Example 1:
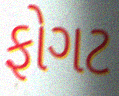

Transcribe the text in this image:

ફોગટ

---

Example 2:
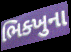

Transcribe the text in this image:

ભિક્ખુના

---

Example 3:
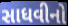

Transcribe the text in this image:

સાધવીનો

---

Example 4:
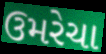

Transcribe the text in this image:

ઉમરેચા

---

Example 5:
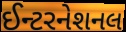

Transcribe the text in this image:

ઈન્ટરનેશનલ